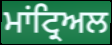
ਮਾਂਟ੍ਰਿਅਲ